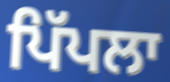
ਪਿੱਪਲਾ